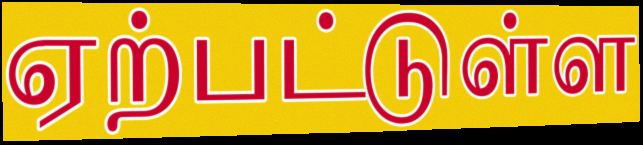
ஏற்பட்டுள்ள